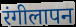
रंगीलापन